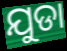
ଯୁଡା